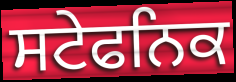
ਸਟੇਫਨਿਕ